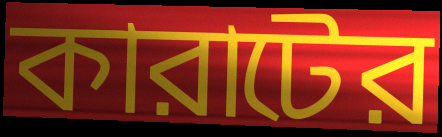
কারাটের